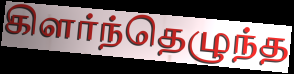
கிளர்ந்தெழுந்த